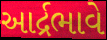
આર્દ્રભાવે